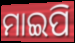
ମାଇପି